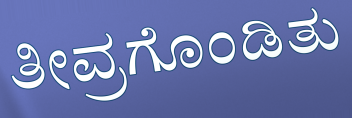
ತೀವ್ರಗೊಂಡಿತು